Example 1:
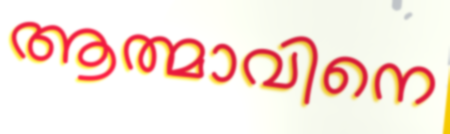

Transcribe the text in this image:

ആത്മാവിനെ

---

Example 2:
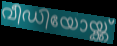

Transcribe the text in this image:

വീഡിയോയ്ക്ക്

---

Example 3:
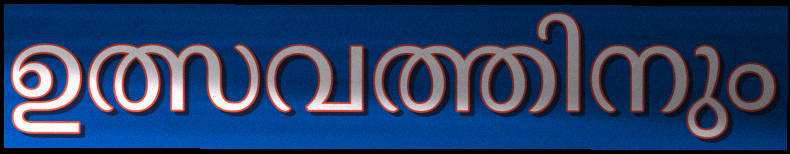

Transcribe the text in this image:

ഉത്സവത്തിനും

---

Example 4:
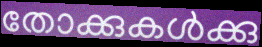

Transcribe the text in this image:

തോക്കുകൾക്കു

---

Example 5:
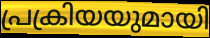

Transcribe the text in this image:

പ്രക്രിയയുമായി